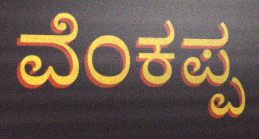
ವೆಂಕಪ್ಪ